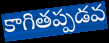
కాగితప్పడవ